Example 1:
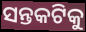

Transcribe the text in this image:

ସନ୍ତକଟିକୁ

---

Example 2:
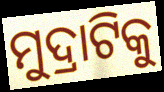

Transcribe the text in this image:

ମୁଦ୍ରାଟିକୁ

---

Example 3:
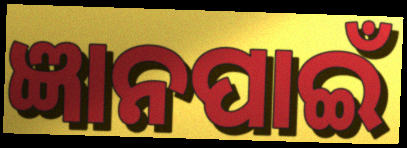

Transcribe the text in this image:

ଜ୍ଞାନପାଇଁ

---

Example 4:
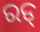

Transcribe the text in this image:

ରଡ୍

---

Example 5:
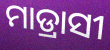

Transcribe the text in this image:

ମାଡ୍ରାସୀ